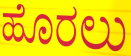
ಹೊರಲು